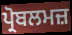
ਪ੍ਰੋਬਲਮਜ਼